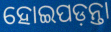
ହୋଇପଡ଼ନ୍ତା